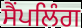
ਸੈਂਪਲਿੰਗ